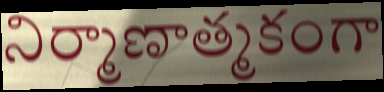
నిర్మాణాత్మకంగా